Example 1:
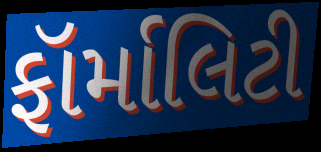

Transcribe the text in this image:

ફૉર્માલિટી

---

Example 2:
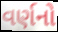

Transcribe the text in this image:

વર્ણનો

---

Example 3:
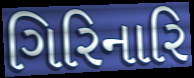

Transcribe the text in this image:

ગિરિનારિ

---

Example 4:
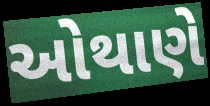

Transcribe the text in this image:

ઓથાણે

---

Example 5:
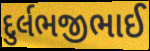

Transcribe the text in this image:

દુર્લભજીભાઈ